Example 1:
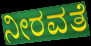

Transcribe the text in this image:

ನೀರವತೆ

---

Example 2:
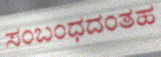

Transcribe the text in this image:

ಸಂಬಂಧದಂತಹ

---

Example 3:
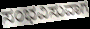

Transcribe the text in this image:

ಸಂಭವಿಸುವಾಗ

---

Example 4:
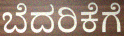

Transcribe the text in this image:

ಬೆದರಿಕೆಗೆ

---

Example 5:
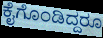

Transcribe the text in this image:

ಕೈಗೊಂಡಿದ್ದರೂ